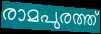
രാമപുരത്ത്